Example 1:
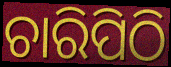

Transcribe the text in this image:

ଚାରିପିଠି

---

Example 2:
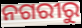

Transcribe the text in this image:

ନଗରୀରୁ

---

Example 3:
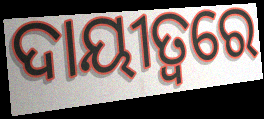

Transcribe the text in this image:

ଦାୟୀତ୍ଵରେ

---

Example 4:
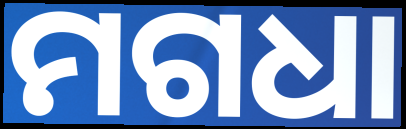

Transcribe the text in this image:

ମଗଧା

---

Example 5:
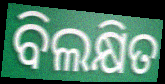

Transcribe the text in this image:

ବିଲକ୍ଷିତ